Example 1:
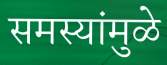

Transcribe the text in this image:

समस्यांमुळे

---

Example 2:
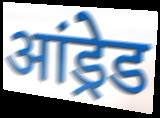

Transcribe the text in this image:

आंड्रेड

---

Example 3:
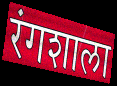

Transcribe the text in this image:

रंगशाला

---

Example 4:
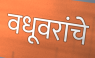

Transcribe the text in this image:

वधूवरांचे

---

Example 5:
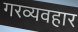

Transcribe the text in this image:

गरव्यवहार